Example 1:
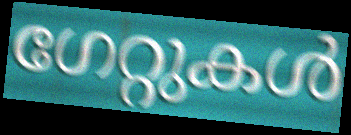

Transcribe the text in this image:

ഗേറ്റുകൾ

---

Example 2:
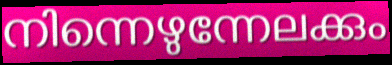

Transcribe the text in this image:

നിന്നെഴുന്നേലക്കും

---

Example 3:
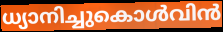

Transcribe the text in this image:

ധ്യാനിച്ചുകൊൾവിൻ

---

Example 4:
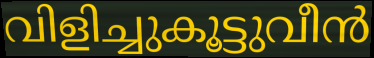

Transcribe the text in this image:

വിളിച്ചുകൂട്ടുവീൻ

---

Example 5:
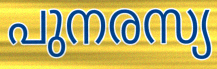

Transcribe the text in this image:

പുനരസ്യ